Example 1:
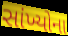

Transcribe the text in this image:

સાંખ્યોના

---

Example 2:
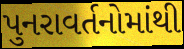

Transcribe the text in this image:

પુનરાવર્તનોમાંથી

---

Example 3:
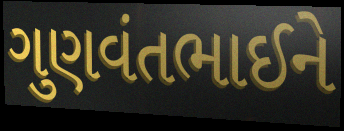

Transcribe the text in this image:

ગુણવંતભાઈને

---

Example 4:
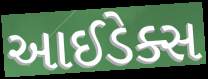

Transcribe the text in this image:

આઈડેક્સ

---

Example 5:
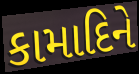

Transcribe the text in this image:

કામાદિને